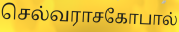
செல்வராசகோபால்